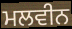
ਮਲਵੀਨ